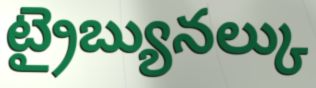
ట్రైబ్యునల్కు